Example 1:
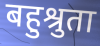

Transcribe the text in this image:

बहुश्रुता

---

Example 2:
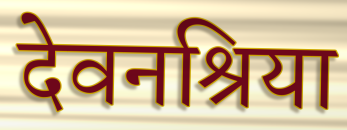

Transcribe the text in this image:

देवनश्रिया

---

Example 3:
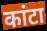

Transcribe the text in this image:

कांटा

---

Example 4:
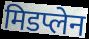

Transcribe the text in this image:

मिडप्लेन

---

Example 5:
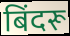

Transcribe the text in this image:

बिंदरू